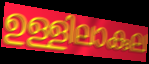
ഉള്ളിലാകുല